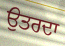
ਉਤਰਦਾ